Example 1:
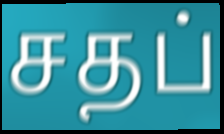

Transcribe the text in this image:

சதப்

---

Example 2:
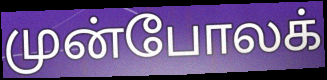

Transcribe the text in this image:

முன்போலக்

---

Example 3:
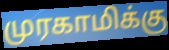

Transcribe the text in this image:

முரகாமிக்கு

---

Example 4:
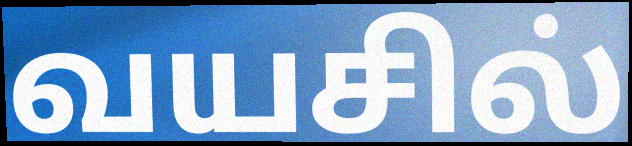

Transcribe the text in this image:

வயசில்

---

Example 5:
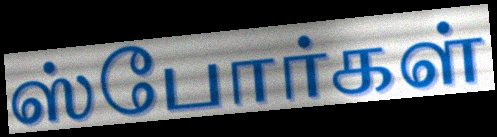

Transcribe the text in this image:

ஸ்போர்கள்